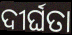
ଦୀର୍ଘତା